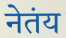
नेतंय